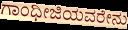
ಗಾಂಧೀಜಿಯವರೇನು